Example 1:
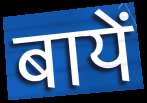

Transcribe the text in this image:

बायें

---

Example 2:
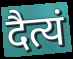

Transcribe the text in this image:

दैत्यं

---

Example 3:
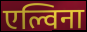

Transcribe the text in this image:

एल्विना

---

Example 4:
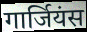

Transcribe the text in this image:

गार्जियंस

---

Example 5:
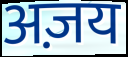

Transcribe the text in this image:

अज़य